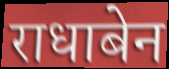
राधाबेन